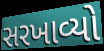
સરખાવ્યો